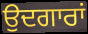
ਉਦਗਾਰਾਂ